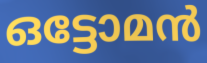
ഒട്ടോമൻ